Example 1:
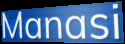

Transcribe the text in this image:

Manasi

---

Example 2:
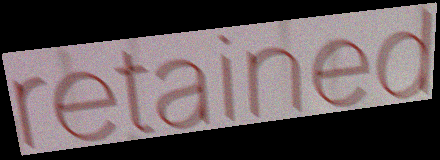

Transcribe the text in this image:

retained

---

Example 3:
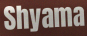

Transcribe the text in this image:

Shyama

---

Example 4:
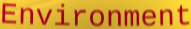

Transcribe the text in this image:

Environment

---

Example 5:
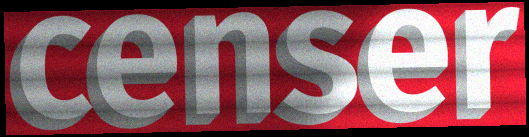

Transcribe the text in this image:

censer